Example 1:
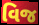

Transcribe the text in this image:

વિજ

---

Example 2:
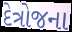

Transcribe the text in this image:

દેત્રોજના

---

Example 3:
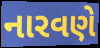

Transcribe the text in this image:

નારવણે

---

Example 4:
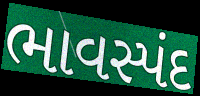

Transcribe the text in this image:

ભાવસ્પંદ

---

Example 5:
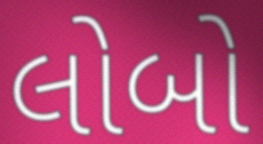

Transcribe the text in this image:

લોબો